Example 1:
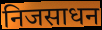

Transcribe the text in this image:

निजसाधन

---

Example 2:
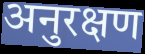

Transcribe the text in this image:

अनुरक्षण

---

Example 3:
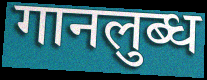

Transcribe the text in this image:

गानलुब्ध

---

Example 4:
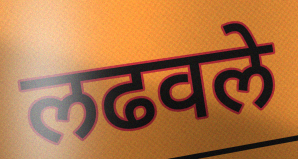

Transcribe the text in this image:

लढवले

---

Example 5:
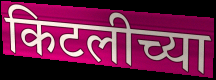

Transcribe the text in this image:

किटलीच्या